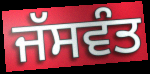
ਜੱਸਵੰਤ